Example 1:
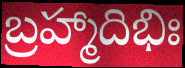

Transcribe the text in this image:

బ్రహ్మాదిభిః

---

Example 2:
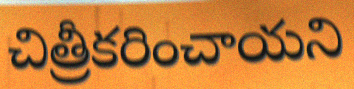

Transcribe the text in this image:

చిత్రీకరించాయని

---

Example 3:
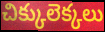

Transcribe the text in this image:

చిక్కులెక్కలు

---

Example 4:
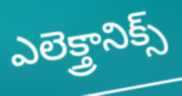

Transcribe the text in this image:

ఎలెక్త్రానిక్స్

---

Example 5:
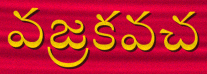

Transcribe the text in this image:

వజ్రకవచ